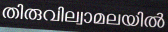
തിരുവില്വാമലയിൽ